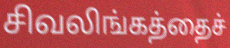
சிவலிங்கத்தைச்